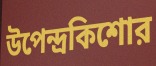
উপেন্দ্রকিশোর